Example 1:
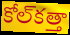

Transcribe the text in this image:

కోల్‌కత్తా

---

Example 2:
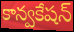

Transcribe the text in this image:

కాన్వకేషన్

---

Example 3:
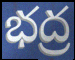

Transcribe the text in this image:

భద్ర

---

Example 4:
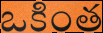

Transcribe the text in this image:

ఒకింత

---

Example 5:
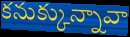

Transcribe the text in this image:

కనుక్కున్నావా